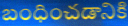
బంధించడానికి